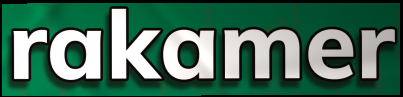
rakamer